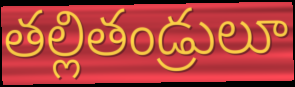
తల్లితండ్రులూ